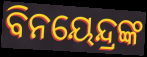
ବିନୟେନ୍ଦ୍ରଙ୍କ